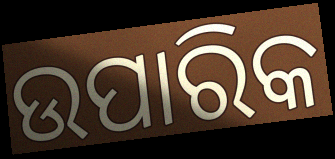
ଉପାରିକ